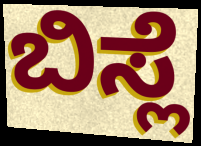
ಬಿಸ್ಲೆ